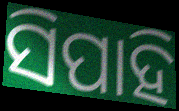
ସିପାହି